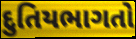
દુતિયભાગતો